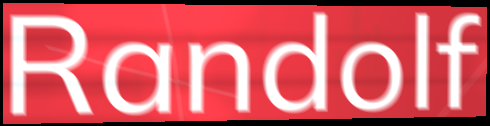
Randolf